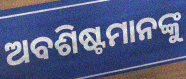
ଅବଶିଷ୍ଟମାନଙ୍କୁ